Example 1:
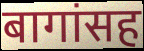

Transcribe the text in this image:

बागांसह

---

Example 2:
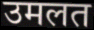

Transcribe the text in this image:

उमलत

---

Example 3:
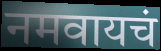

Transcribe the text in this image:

नमवायचं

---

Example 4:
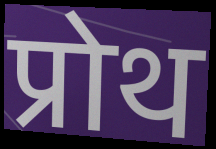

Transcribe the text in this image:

प्रोथ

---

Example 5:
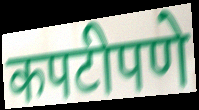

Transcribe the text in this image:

कपटीपणे